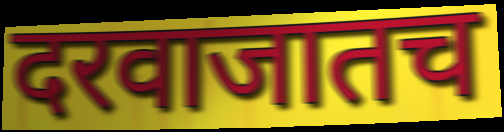
दरवाजातच